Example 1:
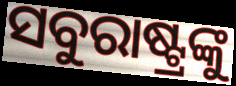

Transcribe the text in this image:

ସବୁରାଷ୍ଟ୍ରଙ୍କୁ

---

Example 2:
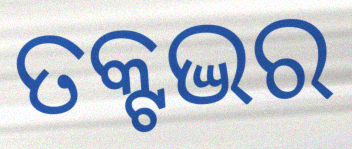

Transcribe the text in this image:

ତକ୍ଟଦ୍ଭର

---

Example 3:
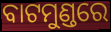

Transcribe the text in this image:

ବାଟମୁଣ୍ଡରେ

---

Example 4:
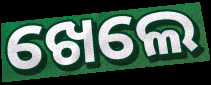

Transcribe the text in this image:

ଖେଲେ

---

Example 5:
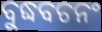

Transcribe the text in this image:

ବୁଦ୍ଧବଚନଂ